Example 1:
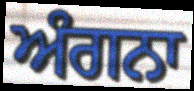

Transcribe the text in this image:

ਅੰਗਨਾ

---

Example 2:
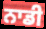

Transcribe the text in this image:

ਨਾਡੀ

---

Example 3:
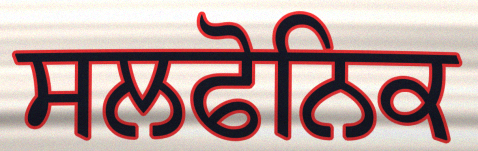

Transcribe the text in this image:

ਸਲਫੋਨਿਕ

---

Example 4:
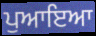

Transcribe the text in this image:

ਪੁਆਇਆ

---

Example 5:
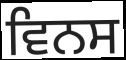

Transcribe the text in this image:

ਵਿਨਸ